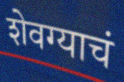
शेवग्याचं